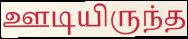
ஊடியிருந்த